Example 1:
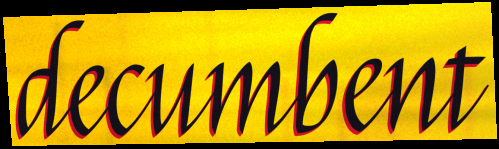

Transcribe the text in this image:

decumbent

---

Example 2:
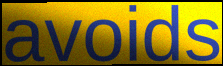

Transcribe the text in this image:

avoids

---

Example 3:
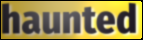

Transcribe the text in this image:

haunted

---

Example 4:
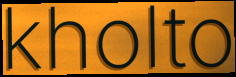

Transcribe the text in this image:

kholto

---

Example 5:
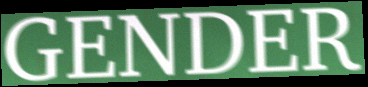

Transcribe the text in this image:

GENDER